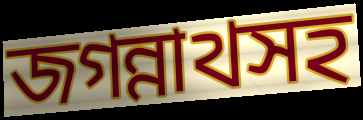
জগন্নাথসহ